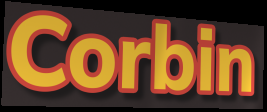
Corbin